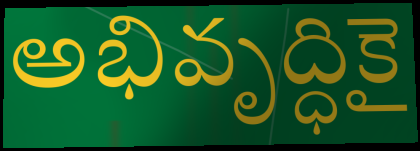
అభివృద్ధికై